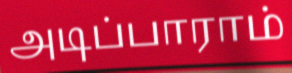
அடிப்பாராம்